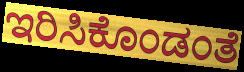
ಇರಿಸಿಕೊಂಡಂತೆ